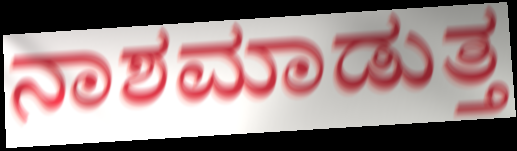
ನಾಶಮಾಡುತ್ತ